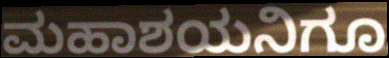
ಮಹಾಶಯನಿಗೂ